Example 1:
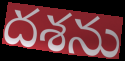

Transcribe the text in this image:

దశను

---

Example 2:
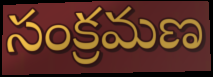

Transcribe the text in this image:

సంక్రమణ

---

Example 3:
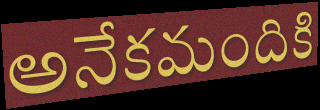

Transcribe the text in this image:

అనేకమందికి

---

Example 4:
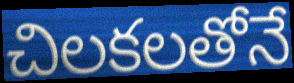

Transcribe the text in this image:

చిలకలతోనే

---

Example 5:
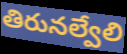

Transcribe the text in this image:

తిరునల్వేలి